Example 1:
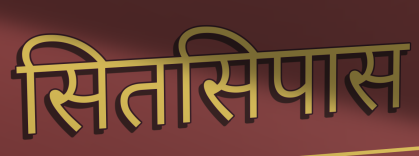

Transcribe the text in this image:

सितसिपास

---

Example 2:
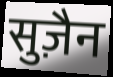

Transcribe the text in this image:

सुज़ैन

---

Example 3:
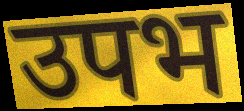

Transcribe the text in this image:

उपभ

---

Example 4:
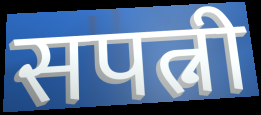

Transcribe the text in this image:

सपत्नी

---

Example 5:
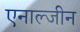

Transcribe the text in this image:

एनाल्जीन